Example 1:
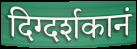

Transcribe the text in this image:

दिग्दर्शकानं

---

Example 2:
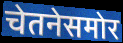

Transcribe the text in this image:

चेतनेसमोर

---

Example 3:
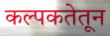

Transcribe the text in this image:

कल्पकतेतून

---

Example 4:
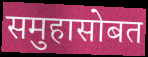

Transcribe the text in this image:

समुहासोबत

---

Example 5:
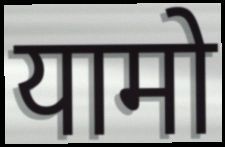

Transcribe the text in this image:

यामो